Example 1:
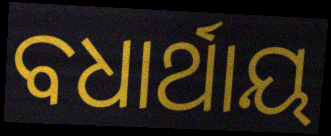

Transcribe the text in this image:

ବଧାର୍ଥାୟ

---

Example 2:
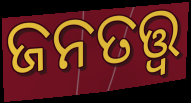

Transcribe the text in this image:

ଜନତତ୍ତ୍ୱ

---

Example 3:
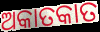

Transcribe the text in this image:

ଅକାତକାତ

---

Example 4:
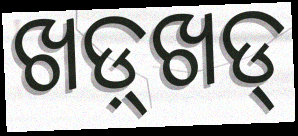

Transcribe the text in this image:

ଖଡ଼୍‌ଖଡ୍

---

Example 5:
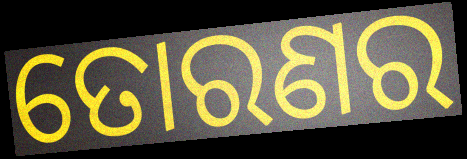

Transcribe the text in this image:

ତୋରଣର